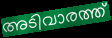
അടിവാരത്ത്